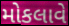
મોકલાવે